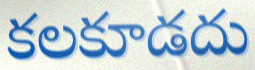
కలకూడదు